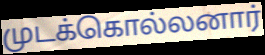
முடக்கொல்லனார்